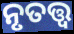
ନୃତତ୍ତ୍ୱ